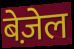
बेज़ेल